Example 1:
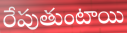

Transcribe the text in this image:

రేపుతుంటాయి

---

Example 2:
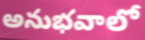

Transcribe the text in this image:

అనుభవాలో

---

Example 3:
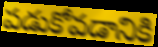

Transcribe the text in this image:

పడుకోవడానికి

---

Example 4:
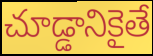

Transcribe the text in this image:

చూడ్డానికైతే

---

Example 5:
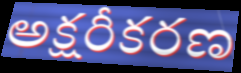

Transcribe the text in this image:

అక్షరీకరణ